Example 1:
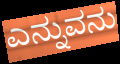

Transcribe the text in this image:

ಎನ್ನುವನು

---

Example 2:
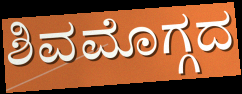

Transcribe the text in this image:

ಶಿವಮೊಗ್ಗದ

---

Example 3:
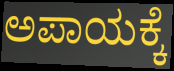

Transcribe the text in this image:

ಅಪಾಯಕ್ಕೆ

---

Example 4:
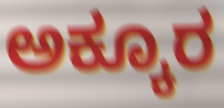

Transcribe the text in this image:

ಅಕ್ಕೂರ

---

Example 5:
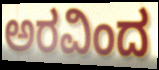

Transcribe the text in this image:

ಅರವಿಂದ